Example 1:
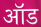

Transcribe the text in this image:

ऑड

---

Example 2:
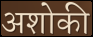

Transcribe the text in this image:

अशोकी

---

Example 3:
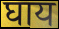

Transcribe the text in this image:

घाय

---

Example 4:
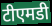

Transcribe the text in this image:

टीएमडी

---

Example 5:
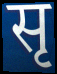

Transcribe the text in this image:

सृ